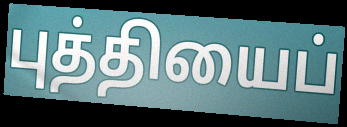
புத்தியைப்